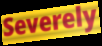
Severely